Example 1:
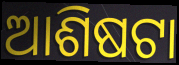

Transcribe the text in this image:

ଆଶିଷଟା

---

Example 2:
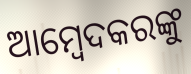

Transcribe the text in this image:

ଆମ୍ବେଦକରଙ୍କୁ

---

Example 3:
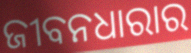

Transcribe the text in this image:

ଜୀବନଧାରାର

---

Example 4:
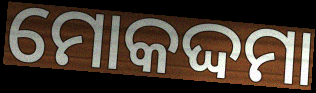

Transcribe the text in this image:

ମୋକଦ୍ଦମା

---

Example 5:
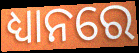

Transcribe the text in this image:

ଧ୍ୟାନରେ